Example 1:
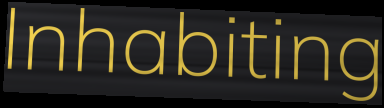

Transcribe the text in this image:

Inhabiting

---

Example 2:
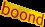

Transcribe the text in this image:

boond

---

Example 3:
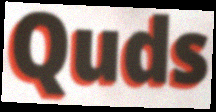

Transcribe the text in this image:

Quds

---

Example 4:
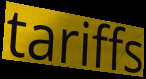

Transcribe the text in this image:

tariffs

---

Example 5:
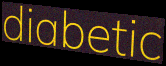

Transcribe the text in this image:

diabetic